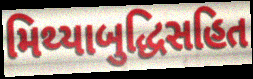
મિથ્યાબુદ્ધિસહિત